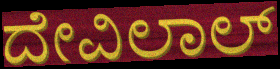
ದೇವಿಲಾಲ್